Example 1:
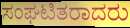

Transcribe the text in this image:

ಸಂಘಟಿತರಾದರು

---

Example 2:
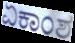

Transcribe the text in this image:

ಏಕಾಂಶ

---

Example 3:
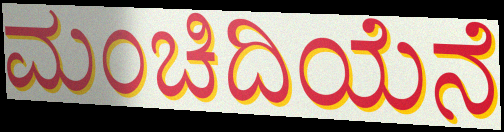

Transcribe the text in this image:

ಮಂಚಿದಿಯೆನೆ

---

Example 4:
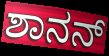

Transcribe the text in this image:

ಶಾನನ್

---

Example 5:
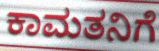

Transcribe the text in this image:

ಕಾಮತನಿಗೆ